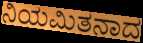
ನಿಯಮಿತನಾದ